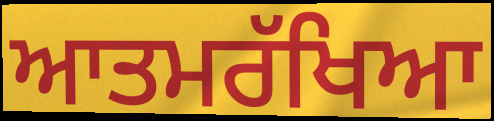
ਆਤਮਰੱਖਿਆ